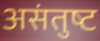
असंतुष्‍ट